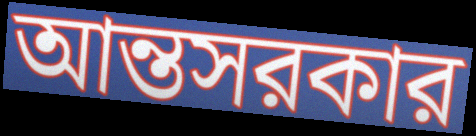
আন্তসরকার